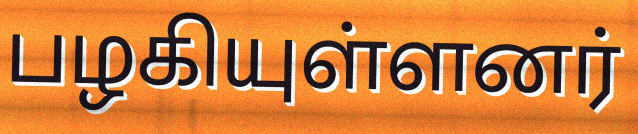
பழகியுள்ளனர்